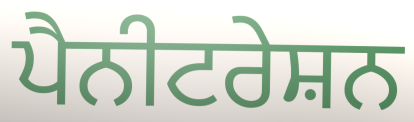
ਪੈਨੀਟਰੇਸ਼ਨ